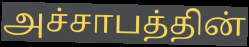
அச்சாபத்தின்